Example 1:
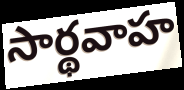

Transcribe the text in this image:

సార్థవాహ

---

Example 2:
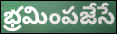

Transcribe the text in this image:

భ్రమింపజేసే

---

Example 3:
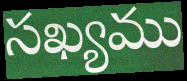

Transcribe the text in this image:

సఖ్యము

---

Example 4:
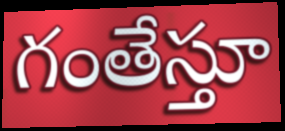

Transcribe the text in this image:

గంతేస్తూ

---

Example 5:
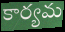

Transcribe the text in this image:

కార్యమ